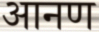
आनण